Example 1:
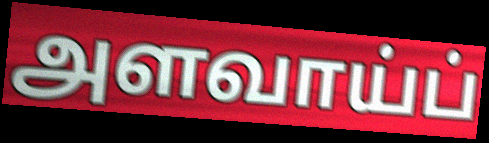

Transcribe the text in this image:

அளவாய்ப்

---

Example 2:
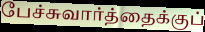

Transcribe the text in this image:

பேச்சுவார்த்தைக்குப்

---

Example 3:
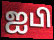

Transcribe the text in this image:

ஐபி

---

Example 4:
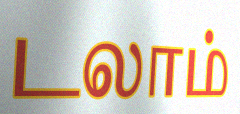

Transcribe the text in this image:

டலாம்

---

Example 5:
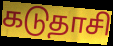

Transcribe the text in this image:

கடுதாசி